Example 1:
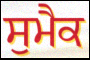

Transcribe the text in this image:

ਸੁਮੈਕ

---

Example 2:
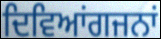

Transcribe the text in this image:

ਦਿਵਿਆਂਗਜਨਾਂ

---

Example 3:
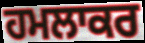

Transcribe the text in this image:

ਹਮਲਾਕਰ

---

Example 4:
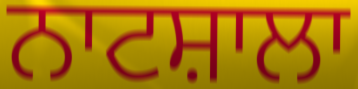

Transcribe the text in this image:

ਨਾਟਸ਼ਾਲਾ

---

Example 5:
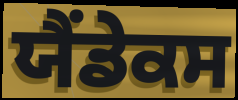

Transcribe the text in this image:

ਯੈਂਡੇਕਸ